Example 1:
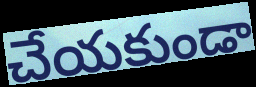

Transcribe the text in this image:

చేయకుండా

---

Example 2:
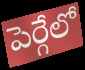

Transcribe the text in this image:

పెర్గేలో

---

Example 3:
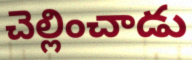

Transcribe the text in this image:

చెల్లించాడు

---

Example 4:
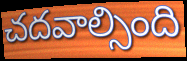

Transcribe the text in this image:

చదవాల్సింది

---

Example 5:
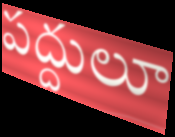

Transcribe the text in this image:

పద్దులూ